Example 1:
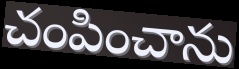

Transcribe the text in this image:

చంపించాను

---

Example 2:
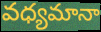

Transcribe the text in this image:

వధ్యమానా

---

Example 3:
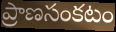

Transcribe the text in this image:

ప్రాణసంకటం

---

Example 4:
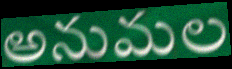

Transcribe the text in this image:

అనుమల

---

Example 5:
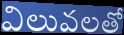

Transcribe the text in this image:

విలువలతో